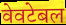
वेवटेबल